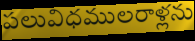
పలువిధములరాళ్లను